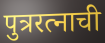
पुत्ररत्नाची